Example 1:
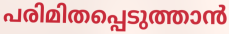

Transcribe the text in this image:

പരിമിതപ്പെടുത്താൻ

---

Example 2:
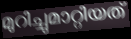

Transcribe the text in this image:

മുറിച്ചുമാറ്റിയത്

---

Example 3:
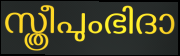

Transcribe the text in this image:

സ്ത്രീപുംഭിദാ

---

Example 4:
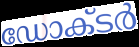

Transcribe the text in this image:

ഡോക്‌ടർ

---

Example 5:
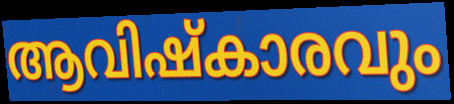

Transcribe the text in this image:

ആവിഷ്കാരവും